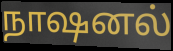
நாஷனல்